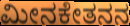
ಮೀನಕೇತನನ